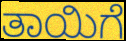
ತಾಯಿಗೆ